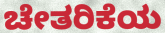
ಚೇತರಿಕೆಯ